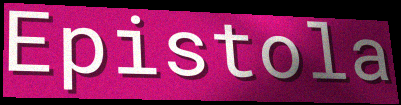
Epistola